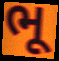
ભૂ